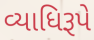
વ્યાધિરૂપે